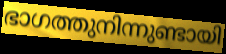
ഭാഗത്തുനിന്നുണ്ടായി